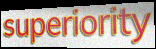
superiority